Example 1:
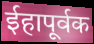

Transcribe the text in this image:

ईहापूर्वक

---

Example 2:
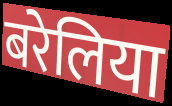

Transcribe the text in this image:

बरेलिया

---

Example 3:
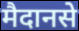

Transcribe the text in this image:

मैदानसे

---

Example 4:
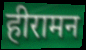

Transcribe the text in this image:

हीरामन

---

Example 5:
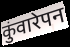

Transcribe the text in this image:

कुंवारेपन